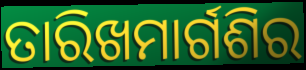
ତାରିଖମାର୍ଗଶିର